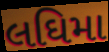
લઘિમા